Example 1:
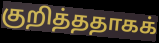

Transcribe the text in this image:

குறித்ததாகக்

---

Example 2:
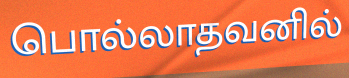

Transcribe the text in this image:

பொல்லாதவனில்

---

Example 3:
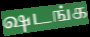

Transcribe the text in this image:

ஷடங்க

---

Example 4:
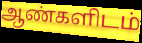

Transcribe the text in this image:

ஆண்களிடம்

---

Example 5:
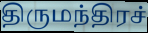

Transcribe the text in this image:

திருமந்திரச்